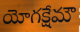
యోగక్షేమౌ